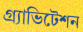
গ্র্যাভিটেশন